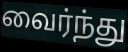
வைர்ந்து